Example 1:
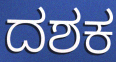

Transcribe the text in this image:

ದಶಕ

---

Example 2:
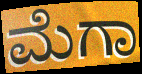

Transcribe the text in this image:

ಮೆಗಾ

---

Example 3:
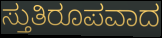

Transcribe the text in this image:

ಸ್ತುತಿರೂಪವಾದ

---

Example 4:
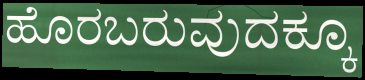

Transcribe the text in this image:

ಹೊರಬರುವುದಕ್ಕೂ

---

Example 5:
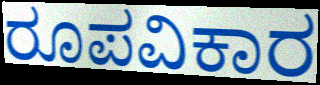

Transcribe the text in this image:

ರೂಪವಿಕಾರ